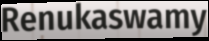
Renukaswamy